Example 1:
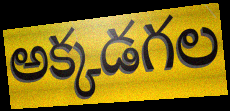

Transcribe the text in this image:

అక్కడగల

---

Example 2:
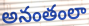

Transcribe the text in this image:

అనంతంలా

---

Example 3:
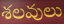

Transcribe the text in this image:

శలవులు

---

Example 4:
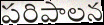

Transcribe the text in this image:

పరిపాలన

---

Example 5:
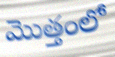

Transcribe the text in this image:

మొత్తంలో